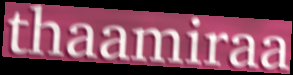
thaamiraa